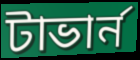
টাভার্ন